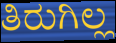
ತಿರುಗಿಲ್ಲ